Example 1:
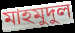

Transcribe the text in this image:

মাহমুদুল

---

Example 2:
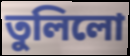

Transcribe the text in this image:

তুলিলো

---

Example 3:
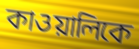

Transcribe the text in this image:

কাওয়ালিকে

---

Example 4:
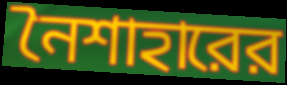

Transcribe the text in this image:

নৈশাহারের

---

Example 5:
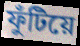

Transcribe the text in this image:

ফুঁটিয়ে